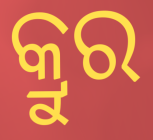
କ୍ରୁର